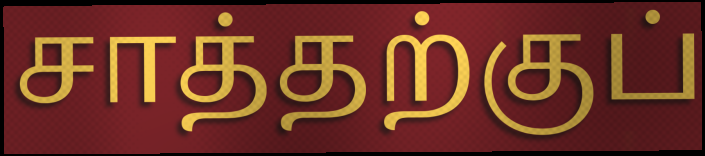
சாத்தற்குப்